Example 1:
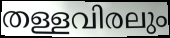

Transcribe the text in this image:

തള്ളവിരലും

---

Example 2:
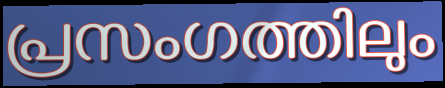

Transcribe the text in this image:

പ്രസംഗത്തിലും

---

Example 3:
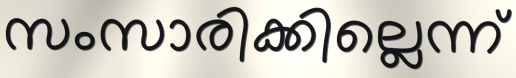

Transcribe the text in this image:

സംസാരിക്കില്ലെന്ന്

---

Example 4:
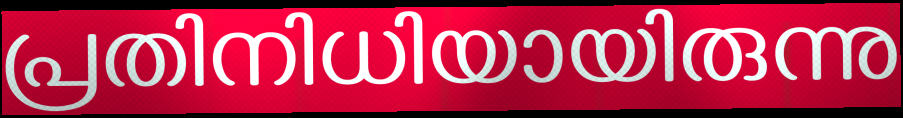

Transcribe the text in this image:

പ്രതിനിധിയായിരുന്നു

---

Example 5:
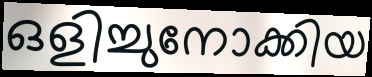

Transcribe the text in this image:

ഒളിച്ചുനോക്കിയ